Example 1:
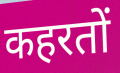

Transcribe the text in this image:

कहरतों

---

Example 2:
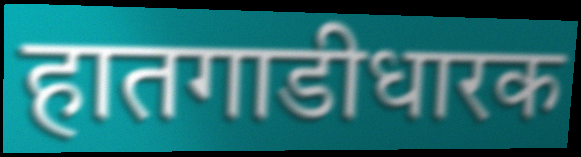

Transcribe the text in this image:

हातगाडीधारक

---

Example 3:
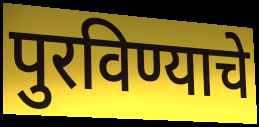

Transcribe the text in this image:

पुरविण्याचे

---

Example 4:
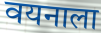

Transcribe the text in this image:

वयनाला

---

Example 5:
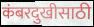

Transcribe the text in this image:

कंबरदुखीसाठी